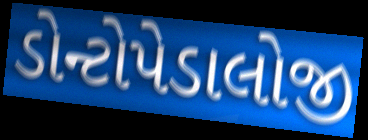
ડોન્ટોપેડાલોજી